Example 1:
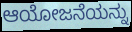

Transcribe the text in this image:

ಆಯೋಜನೆಯನ್ನು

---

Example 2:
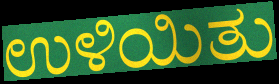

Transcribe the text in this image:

ಉಳಿಯಿತು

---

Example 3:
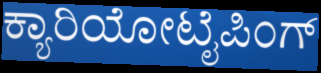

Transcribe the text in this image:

ಕ್ಯಾರಿಯೋಟೈಪಿಂಗ್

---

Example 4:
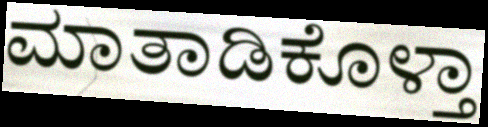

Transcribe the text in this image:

ಮಾತಾಡಿಕೊಳ್ತಾ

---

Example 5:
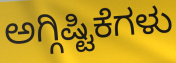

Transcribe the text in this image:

ಅಗ್ಗಿಷ್ಟಿಕೆಗಳು